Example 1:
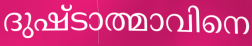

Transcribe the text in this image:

ദുഷ്ടാത്മാവിനെ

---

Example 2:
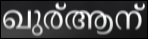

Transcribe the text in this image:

ഖുര്ആന്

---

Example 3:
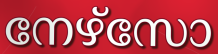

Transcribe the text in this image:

നേഴ്സോ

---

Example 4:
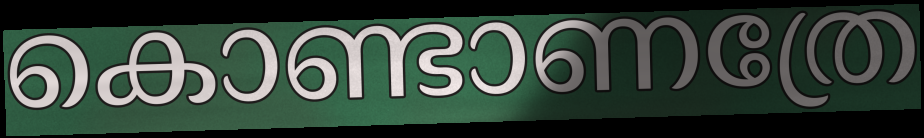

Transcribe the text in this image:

കൊണ്ടാണത്രേ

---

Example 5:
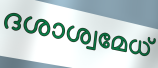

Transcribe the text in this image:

ദശാശ്വമേധ്